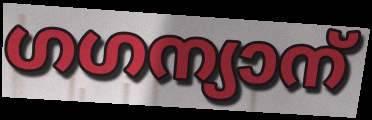
ഗഗന്യാന്